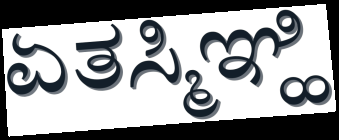
ಏತಸ್ಮಿಞ್ಹಿ